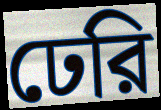
ঢেরি